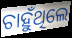
ଚାହୁଁଥିଲେ